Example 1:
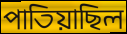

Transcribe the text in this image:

পাতিয়াছিল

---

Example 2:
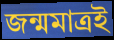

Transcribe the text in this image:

জন্মমাত্রই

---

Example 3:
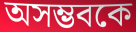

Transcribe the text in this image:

অসম্ভবকে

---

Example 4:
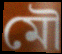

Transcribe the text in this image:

মৌ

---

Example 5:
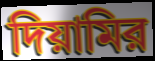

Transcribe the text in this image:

দিয়ামির